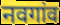
नवगांव